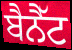
ਬੈਨੈੱਟ